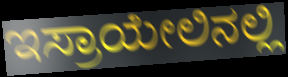
ಇಸ್ರಾಯೇಲಿನಲ್ಲಿ